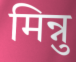
मिन्नु